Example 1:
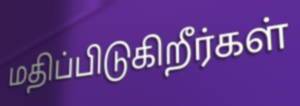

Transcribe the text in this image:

மதிப்பிடுகிறீர்கள்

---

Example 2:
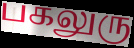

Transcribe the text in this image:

பகலுரு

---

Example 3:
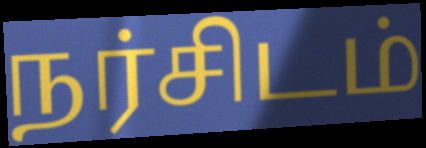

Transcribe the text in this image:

நர்சிடம்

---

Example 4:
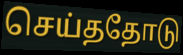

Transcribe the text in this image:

செய்ததோடு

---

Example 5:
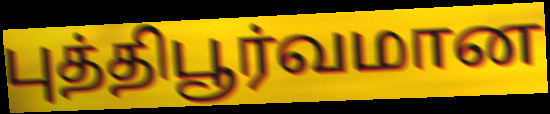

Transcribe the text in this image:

புத்திபூர்வமான